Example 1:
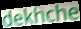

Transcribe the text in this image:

dekhche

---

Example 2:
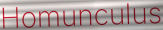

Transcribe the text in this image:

Homunculus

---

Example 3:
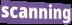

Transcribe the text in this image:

scanning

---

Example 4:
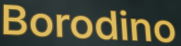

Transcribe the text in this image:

Borodino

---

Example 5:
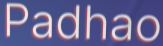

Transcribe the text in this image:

Padhao